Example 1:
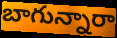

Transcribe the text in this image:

బాగున్నారా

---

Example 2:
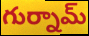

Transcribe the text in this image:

గుర్నామ్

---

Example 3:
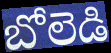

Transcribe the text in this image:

బోలెడి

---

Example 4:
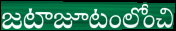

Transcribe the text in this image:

జటాజూటంలోంచి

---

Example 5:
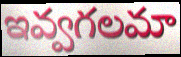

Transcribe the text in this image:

ఇవ్వగలమా